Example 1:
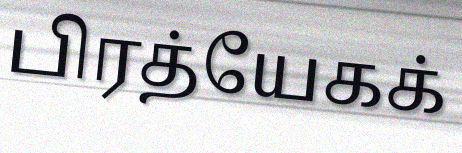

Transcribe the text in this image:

பிரத்யேகக்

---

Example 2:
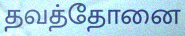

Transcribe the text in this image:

தவத்தோனை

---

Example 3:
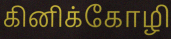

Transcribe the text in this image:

கினிக்கோழி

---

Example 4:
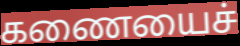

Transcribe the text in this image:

கணையைச்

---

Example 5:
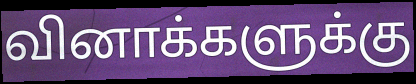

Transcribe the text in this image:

வினாக்களுக்கு